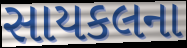
સાયકલના